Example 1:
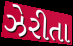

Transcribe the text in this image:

ઝેરીતા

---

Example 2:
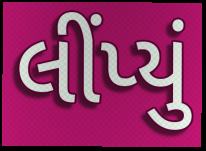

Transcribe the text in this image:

લીંપ્યું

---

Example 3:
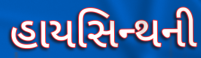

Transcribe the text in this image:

હાયસિન્થની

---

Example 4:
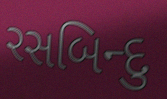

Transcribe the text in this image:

રસબિન્દુ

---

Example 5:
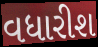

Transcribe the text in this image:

વધારીશ